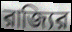
রাজ্যির